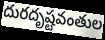
దురదృష్టవంతుల